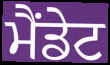
ਮੈਂਡੇਟ